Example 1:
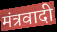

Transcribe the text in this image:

मंत्रवादी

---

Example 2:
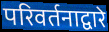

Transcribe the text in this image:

परिवर्तनाद्वारे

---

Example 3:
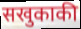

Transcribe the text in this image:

सखुकाकी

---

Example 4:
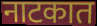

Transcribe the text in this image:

नाटकात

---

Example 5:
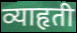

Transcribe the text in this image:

व्याहृती